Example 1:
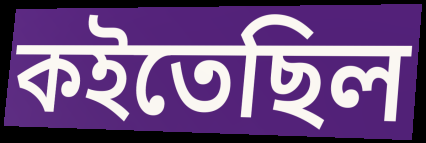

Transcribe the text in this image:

কইতেছিল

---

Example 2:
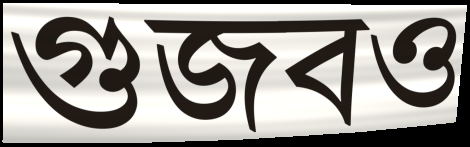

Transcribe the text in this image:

গুজবও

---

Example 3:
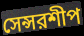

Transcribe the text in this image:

সেন্সরশীপ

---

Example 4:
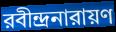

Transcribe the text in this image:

রবীন্দ্রনারায়ণ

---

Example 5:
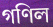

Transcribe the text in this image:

গণিল